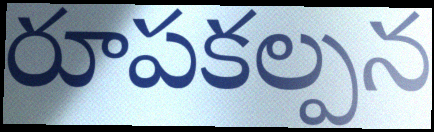
రూపకల్పన